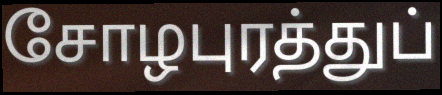
சோழபுரத்துப்